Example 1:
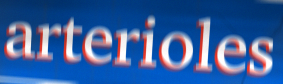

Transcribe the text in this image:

arterioles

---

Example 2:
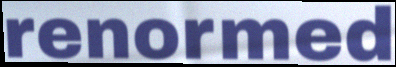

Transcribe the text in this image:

renormed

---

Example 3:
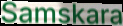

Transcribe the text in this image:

Samskara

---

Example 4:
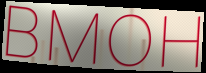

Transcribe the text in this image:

BMOH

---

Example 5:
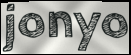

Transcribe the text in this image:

jonyo